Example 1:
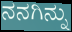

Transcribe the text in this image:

ನನಗಿನ್ನು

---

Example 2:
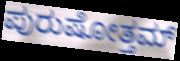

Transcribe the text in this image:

ಪುರುಷೋತ್ತಮ್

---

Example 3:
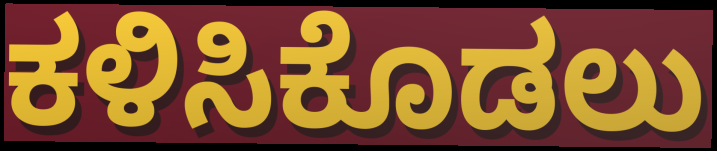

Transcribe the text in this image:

ಕಳಿಸಿಕೊಡಲು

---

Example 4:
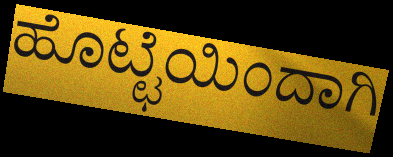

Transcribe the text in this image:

ಹೊಟ್ಟೆಯಿಂದಾಗಿ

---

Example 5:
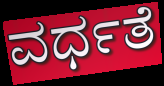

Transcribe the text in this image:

ವರ್ಧತೆ